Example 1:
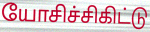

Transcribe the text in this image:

யோசிச்சிகிட்டு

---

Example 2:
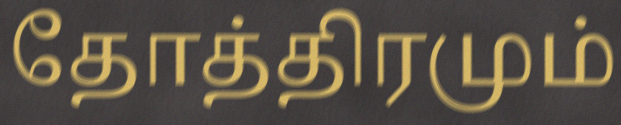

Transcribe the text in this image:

தோத்திரமும்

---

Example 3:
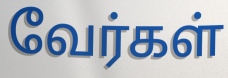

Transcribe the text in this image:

வேர்கள்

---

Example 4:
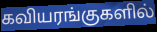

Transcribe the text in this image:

கவியரங்குகளில்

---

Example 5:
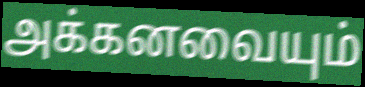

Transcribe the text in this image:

அக்கனவையும்